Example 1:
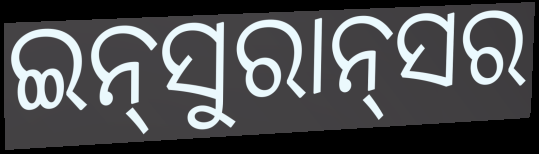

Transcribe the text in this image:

ଇନ୍‍ସୁରାନ୍‍ସର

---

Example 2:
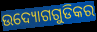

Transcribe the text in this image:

ଉଦ୍ୟୋଗଗୁଡିକର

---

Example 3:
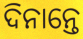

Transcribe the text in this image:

ଦିନାନ୍ତେ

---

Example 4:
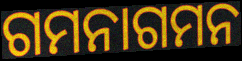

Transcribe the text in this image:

ଗମନାଗମନ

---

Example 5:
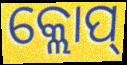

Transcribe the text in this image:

କ୍ଲୋପ୍